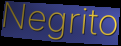
Negrito